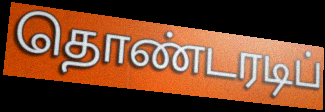
தொண்டரடிப்